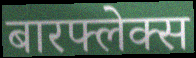
बारफ्लेक्स